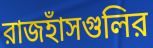
রাজহাঁসগুলির